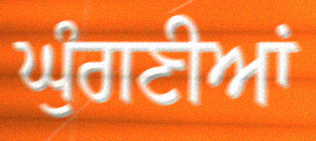
ਘੁੰਗਣੀਆਂ